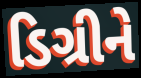
ડિગ્રીને